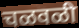
चळवळी